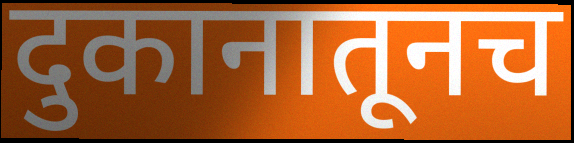
दुकानातूनच